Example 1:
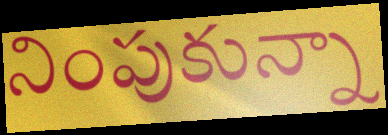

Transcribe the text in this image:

నింపుకున్నా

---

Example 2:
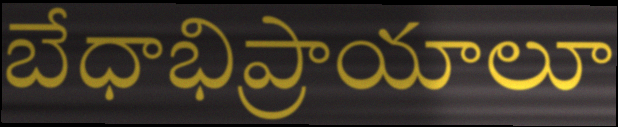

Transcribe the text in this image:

బేధాభిప్రాయాలూ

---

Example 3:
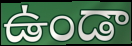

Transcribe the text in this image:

ఉండా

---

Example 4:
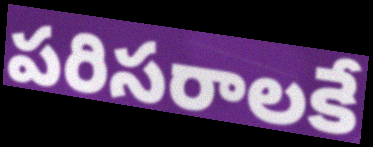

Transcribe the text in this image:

పరిసరాలకే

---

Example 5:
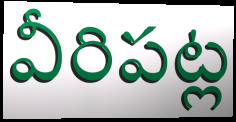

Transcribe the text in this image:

వీరిపట్ల